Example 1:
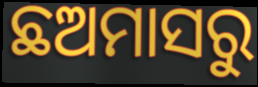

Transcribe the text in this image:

ଛଅମାସରୁ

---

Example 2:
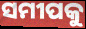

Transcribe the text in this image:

ସମୀପକୁ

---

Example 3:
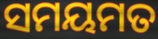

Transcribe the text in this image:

ସମୟମତ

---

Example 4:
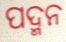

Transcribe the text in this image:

ପଦ୍ମନ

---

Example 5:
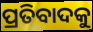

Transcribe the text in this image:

ପ୍ରତିବାଦକୁ